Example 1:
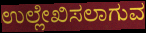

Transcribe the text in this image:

ಉಲ್ಲೇಖಿಸಲಾಗುವ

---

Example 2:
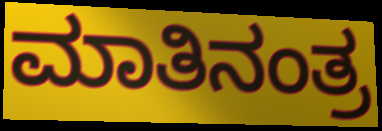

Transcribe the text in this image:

ಮಾತಿನಂತ್ರ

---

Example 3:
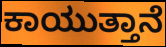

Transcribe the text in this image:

ಕಾಯುತ್ತಾನೆ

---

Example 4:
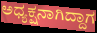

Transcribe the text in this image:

ಅಧ್ಯಕ್ಷನಾಗಿದ್ದಾಗ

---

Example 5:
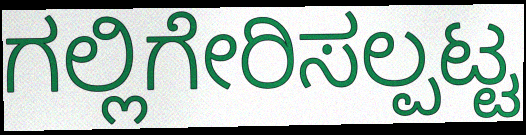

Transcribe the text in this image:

ಗಲ್ಲಿಗೇರಿಸಲ್ಪಟ್ಟ